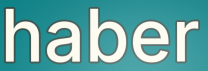
haber